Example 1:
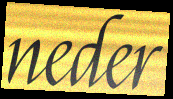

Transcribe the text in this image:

neder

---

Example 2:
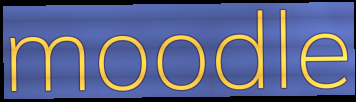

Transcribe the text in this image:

moodle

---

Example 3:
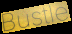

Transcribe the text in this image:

Bustle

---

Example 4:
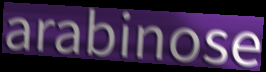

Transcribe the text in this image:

arabinose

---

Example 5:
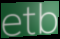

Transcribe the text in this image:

etb